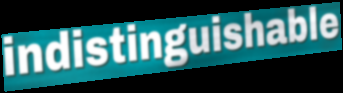
indistinguishable